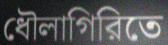
ধৌলাগিরিতে